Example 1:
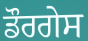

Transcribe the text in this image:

ਡੌਰਗੇਸ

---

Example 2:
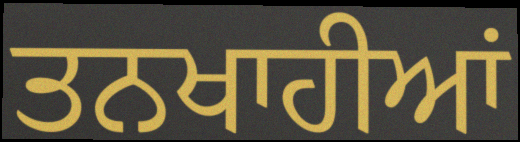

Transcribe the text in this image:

ਤਨਖਾਹੀਆਂ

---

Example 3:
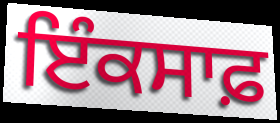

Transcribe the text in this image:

ਇੰਕਸਾਫ਼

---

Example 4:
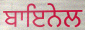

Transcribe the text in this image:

ਬਾਇਨੇਲ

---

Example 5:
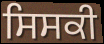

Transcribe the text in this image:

ਸਿਸਕੀ